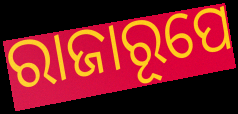
ରାଜାରୂପେ